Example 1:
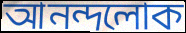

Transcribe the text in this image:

আনন্দলোক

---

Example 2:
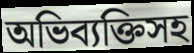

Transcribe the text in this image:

অভিব্যক্তিসহ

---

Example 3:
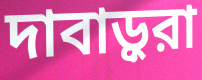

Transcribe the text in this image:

দাবাড়ুরা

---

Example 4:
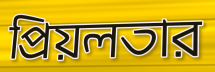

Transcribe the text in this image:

প্রিয়লতার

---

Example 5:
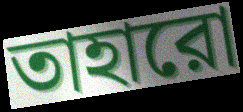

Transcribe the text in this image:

তাহারো